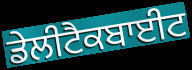
ਡੇਲੀਟੈਕਬਾਈਟ